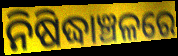
ନିଷିଦ୍ଧାଞ୍ଚଳରେ